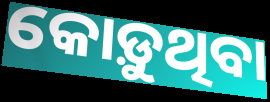
କୋଡ଼ୁଥିବା